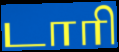
டாரி